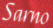
Sarno